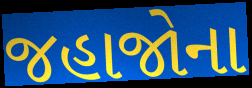
જહાજોના